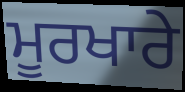
ਮੂਰਖਾਰੇ